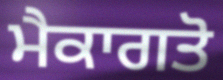
ਮੈਕਾਗਤੋ